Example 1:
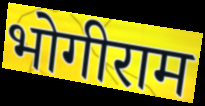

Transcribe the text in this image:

भोगीराम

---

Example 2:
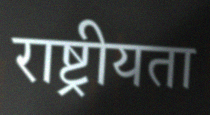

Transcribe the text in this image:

राष्ट्रीयता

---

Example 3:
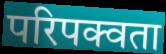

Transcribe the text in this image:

परिपक्‍वता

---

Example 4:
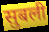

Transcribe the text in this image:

सुबली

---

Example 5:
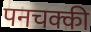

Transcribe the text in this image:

पनचक्की